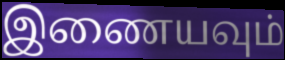
இணையவும்